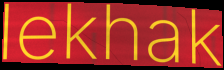
lekhak